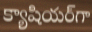
క్యాషియర్‌గా